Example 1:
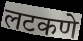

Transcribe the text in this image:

लटकणे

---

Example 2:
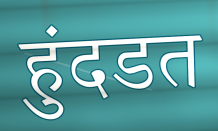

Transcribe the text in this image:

हुंदडत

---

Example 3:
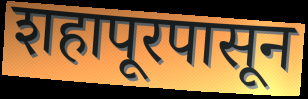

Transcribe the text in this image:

शहापूरपासून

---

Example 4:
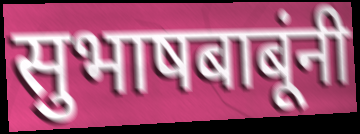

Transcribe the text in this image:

सुभाषबाबूंनी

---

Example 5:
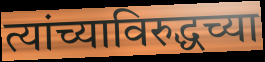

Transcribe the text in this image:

त्यांच्याविरुद्धच्या